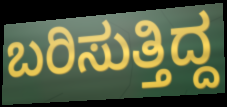
ಬರಿಸುತ್ತಿದ್ದ